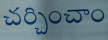
చర్చించాం